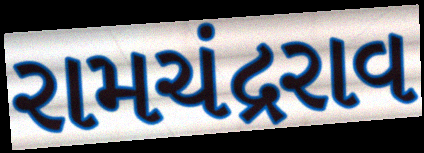
રામચંદ્રરાવ